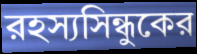
রহস্যসিন্ধুকের